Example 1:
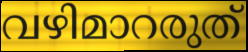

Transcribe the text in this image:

വഴിമാറരുത്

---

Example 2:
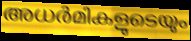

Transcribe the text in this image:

അധർമികളുടെയും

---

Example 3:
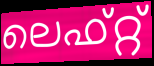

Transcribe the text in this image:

ലെഫ്റ്റ്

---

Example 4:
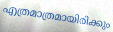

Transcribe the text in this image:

എത്രമാത്രമായിരിക്കും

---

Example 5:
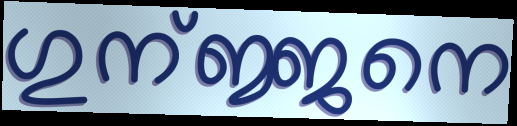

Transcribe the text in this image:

ഗുന്ജ്ജനെ